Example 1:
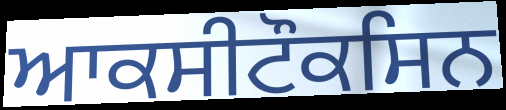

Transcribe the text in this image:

ਆਕਸੀਟੌਕਸਿਨ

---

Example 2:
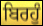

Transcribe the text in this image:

ਬਿਰਹੁੰ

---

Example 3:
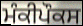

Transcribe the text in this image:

ਮੰਕੀਪੌਕਸ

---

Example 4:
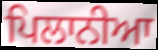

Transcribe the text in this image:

ਪਿਲਾਨੀਆ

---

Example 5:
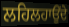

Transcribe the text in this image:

ਲਹਿਲਹਾਉਂਦੇ